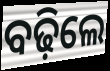
ବଢ଼ିଲେ